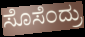
ಸೊಸೆಂದ್ರು